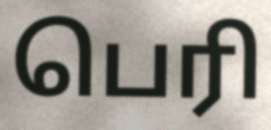
பெரி